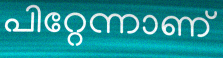
പിറ്റേന്നാണ്